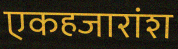
एकहजारांश